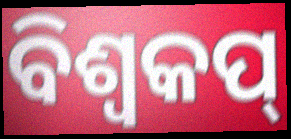
ବିଶ୍ୱକପ୍